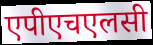
एपीएचएलसी